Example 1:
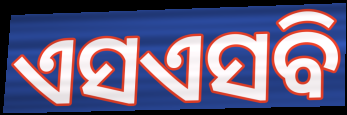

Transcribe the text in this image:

ଏସଏସବି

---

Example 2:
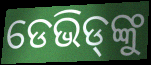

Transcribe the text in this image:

ଡେଭିଡ୍‌ଙ୍କୁ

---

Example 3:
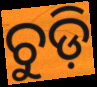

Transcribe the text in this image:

ଚୁଡ଼ି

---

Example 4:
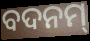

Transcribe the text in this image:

ବଦନମ୍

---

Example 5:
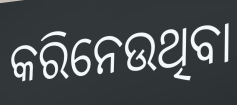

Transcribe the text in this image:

କରିନେଉଥିବା